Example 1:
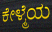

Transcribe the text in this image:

ಕೇಳ್ಮೆಯ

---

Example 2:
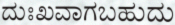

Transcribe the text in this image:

ದುಃಖವಾಗಬಹುದು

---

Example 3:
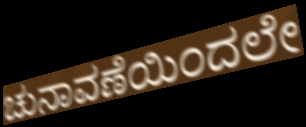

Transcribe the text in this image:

ಚುನಾವಣೆಯಿಂದಲೇ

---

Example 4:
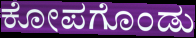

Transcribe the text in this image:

ಕೋಪಗೊಂಡು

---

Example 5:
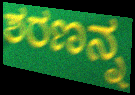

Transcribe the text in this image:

ಶರಣನ್ನ